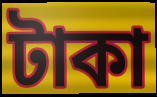
টাকা